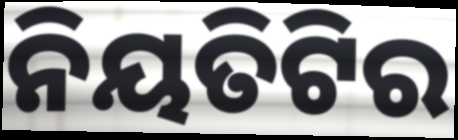
ନିୟତିଟିର